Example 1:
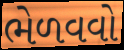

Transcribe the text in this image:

ભેળવવો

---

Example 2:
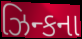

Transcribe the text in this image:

ઝિન્કના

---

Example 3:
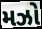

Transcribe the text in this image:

મઝો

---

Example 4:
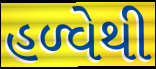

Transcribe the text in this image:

હળ્વેથી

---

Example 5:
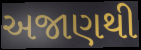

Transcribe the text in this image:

અજાણથી